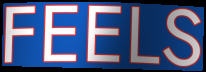
FEELS